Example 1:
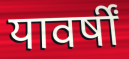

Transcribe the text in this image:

यावर्षीं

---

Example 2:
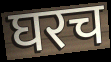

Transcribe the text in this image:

घरच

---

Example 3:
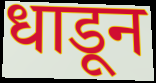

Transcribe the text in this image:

धाडून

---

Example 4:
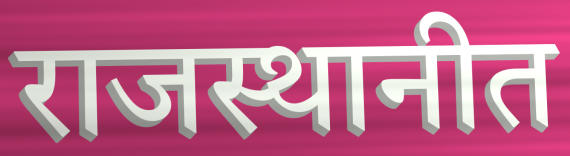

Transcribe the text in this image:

राजस्थानीत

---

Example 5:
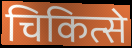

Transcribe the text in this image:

चिकित्से